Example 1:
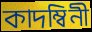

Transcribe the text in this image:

কাদম্বিনী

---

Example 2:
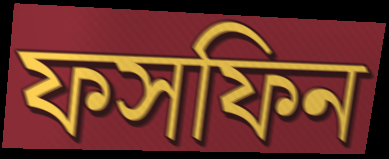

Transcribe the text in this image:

ফসফিন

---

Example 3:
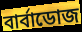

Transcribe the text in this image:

বার্বাডোজ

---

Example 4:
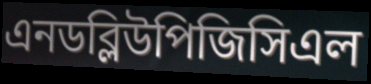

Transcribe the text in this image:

এনডব্লিউপিজিসিএল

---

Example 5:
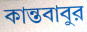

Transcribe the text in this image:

কান্তবাবুর